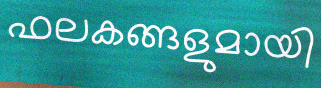
ഫലകങ്ങളുമായി